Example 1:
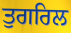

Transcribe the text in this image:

ਤੁਗਰਿਲ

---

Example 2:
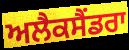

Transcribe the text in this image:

ਅਲੈਕਸੈਂਡਰਾ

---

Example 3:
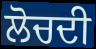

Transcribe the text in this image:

ਲੋਚਦੀ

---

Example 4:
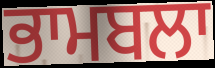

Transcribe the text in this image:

ਭਾਮਬਲਾ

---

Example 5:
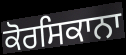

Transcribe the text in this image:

ਕੋਰਸਿਕਾਨਾ